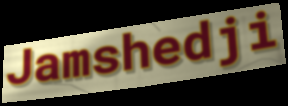
Jamshedji